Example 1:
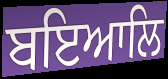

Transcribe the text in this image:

ਬਇਆਲਿ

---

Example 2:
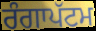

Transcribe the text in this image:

ਰੰਗਾਪੱਟਮ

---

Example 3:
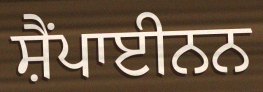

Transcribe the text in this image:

ਸ਼ੈਂਪਾਈਨਨ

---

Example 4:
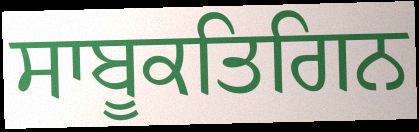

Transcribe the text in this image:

ਸਾਬੂਕਤਿਗਿਨ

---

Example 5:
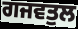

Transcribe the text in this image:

ਗਜਵਤੁਲ